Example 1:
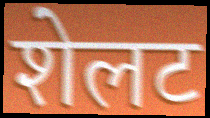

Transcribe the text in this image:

शेलट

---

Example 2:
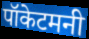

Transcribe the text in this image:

पॉकेटमनी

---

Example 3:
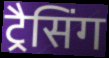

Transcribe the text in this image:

ट्रैसिंग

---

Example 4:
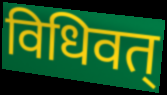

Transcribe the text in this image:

विधिवत्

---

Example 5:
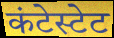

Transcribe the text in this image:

कंटेस्टेट